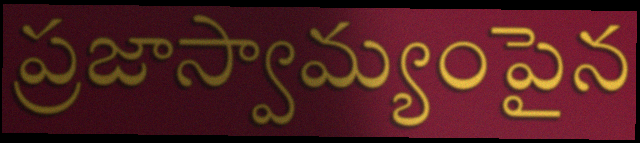
ప్రజాస్వామ్యంపైన